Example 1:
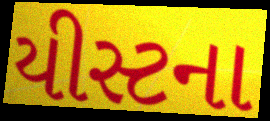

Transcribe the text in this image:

યીસ્ટના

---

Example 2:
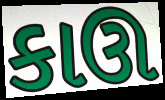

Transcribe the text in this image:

કાઊ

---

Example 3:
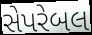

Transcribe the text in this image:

સેપરેબલ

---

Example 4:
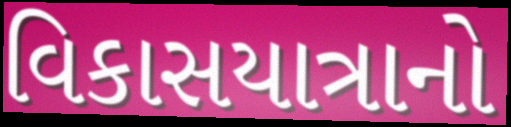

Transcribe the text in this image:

વિકાસયાત્રાનો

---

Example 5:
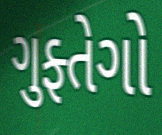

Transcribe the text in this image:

ગુફ્તેગો